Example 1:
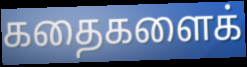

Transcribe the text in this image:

கதைகளைக்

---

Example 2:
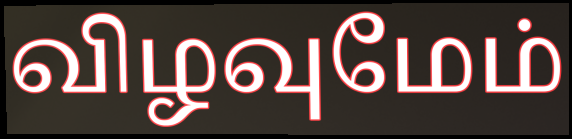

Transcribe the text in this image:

விழவுமேம்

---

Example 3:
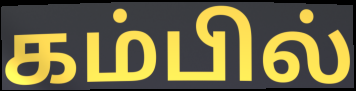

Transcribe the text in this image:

கம்பில்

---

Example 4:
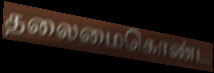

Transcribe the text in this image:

தலைமைகொண்ட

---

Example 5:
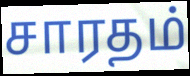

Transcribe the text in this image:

சாரதம்